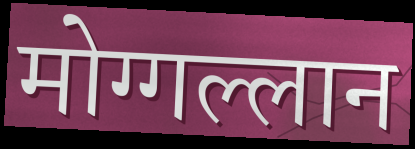
मोग्गल्लान